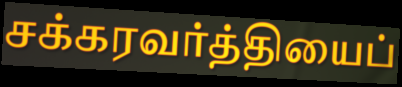
சக்கரவர்த்தியைப்